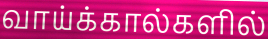
வாய்க்கால்களில்